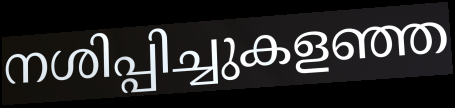
നശിപ്പിച്ചുകളഞ്ഞ